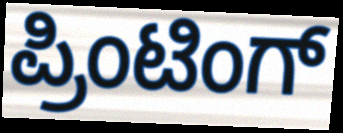
ಪ್ರಿಂಟಿಂಗ್